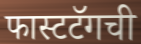
फास्टटॅगची